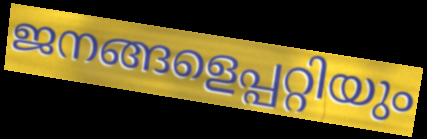
ജനങ്ങളെപ്പറ്റിയും